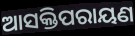
ଆସକ୍ତିପରାୟଣ